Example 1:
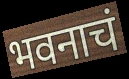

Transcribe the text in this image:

भवनाचं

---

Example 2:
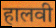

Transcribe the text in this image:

हालवी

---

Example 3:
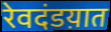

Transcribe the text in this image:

रेवदंडय़ात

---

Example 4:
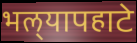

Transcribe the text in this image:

भल्यापहाटे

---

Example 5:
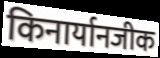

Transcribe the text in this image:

किनार्यानजीक